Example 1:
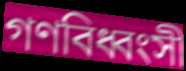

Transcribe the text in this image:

গণবিধ্বংসী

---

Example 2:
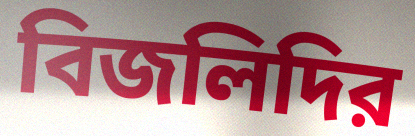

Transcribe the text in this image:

বিজলিদির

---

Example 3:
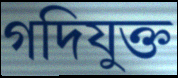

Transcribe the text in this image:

গদিযুক্ত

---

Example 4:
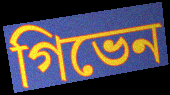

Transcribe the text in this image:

গিভেন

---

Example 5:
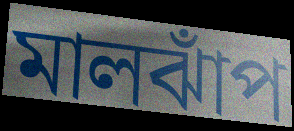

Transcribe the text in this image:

মালঝাঁপ